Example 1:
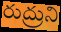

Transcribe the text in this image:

రుద్రుని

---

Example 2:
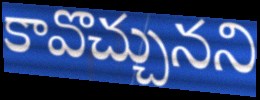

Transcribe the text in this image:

కావొచ్చునని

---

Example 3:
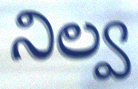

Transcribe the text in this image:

నిల్వ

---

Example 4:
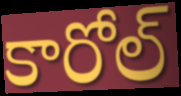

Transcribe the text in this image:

కారోల్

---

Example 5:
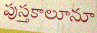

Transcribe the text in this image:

పుస్తకాలూనూ